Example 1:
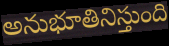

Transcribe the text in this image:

అనుభూతినిస్తుంది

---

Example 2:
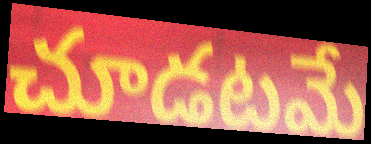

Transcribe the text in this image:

చూడటమే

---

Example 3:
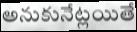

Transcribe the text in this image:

అనుకునేట్లయితే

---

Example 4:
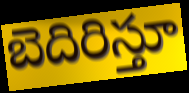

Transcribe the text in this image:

బెదిరిస్తూ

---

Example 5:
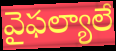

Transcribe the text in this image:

వైఫల్యాలే